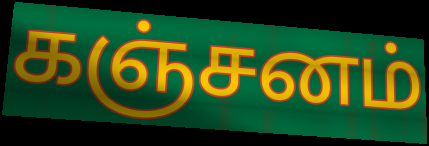
கஞ்சனம்